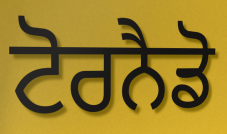
ਟੋਰਨੈਡੋ